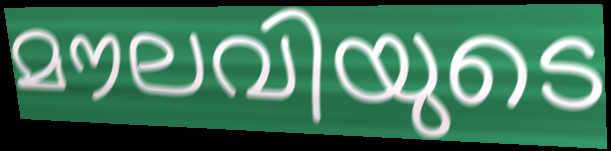
മൗലവിയുടെ